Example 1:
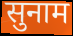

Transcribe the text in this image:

सुनाम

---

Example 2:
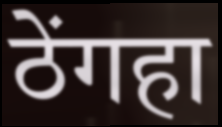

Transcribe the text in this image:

ठेंगहा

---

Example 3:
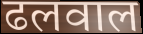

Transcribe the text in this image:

ढलवाल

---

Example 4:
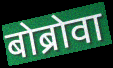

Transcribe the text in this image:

बोब्रोवा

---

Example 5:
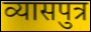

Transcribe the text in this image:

व्यासपुत्र